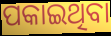
ପକାଇଥିବା